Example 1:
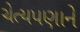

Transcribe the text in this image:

ચેત્યપણાને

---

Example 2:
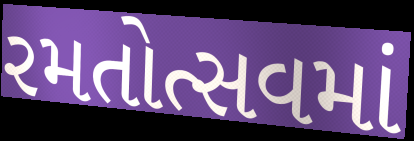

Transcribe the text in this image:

રમતોત્સવમાં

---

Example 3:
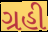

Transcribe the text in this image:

ગ્રહી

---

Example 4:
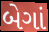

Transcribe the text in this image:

બેગાં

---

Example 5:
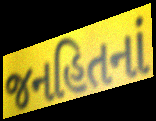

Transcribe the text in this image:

જનહિતનાં